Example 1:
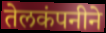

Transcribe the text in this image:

तेलकंपनीने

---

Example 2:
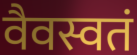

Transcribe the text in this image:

वैवस्वतं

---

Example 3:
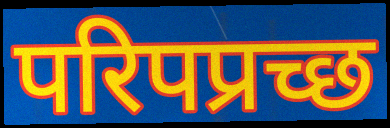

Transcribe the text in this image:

परिपप्रच्छ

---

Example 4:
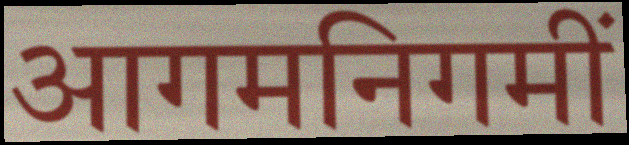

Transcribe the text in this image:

आगमनिगमीं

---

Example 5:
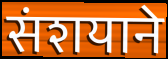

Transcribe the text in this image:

संशयाने